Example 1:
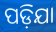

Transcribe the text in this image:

ପଡ଼ିଯା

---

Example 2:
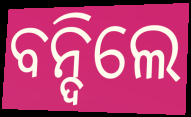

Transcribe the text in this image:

ବନ୍ଦିଲେ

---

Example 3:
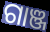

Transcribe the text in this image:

ଗାଞ୍ଜ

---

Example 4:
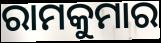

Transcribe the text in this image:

ରାମକୁମାର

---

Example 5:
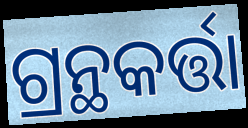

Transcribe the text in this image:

ଗ୍ରନ୍ଥକର୍ତ୍ତା